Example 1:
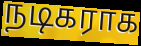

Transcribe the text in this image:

நடிகராக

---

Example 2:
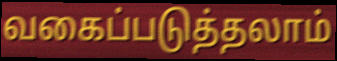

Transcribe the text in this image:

வகைப்படுத்தலாம்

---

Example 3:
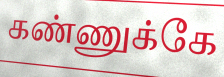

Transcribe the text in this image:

கண்ணுக்கே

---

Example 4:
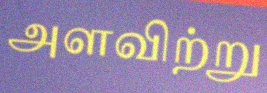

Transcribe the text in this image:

அளவிற்று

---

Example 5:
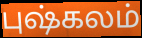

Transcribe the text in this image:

புஷ்கலம்